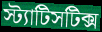
স্ট্যাটিসটিক্স